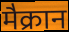
मैक्रान